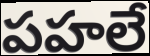
పహలే